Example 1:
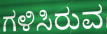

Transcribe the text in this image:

ಗಳಿಸಿರುವ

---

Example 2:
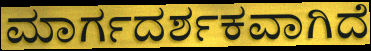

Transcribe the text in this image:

ಮಾರ್ಗದರ್ಶಕವಾಗಿದೆ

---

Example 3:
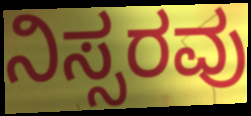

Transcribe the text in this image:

ನಿಸ್ಸರವು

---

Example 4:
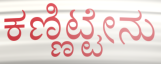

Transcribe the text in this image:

ಕಣ್ಣಿಟ್ಟೇನು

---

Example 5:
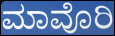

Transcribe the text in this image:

ಮಾವೊರಿ